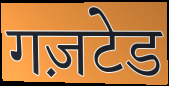
गज़टेड